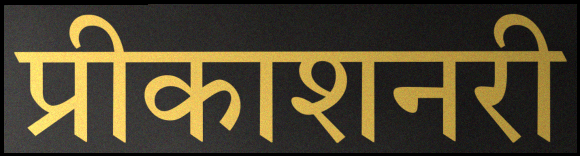
प्रीकाशनरी